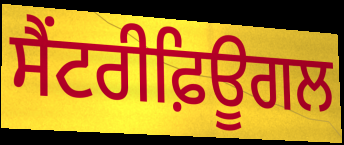
ਸੈਂਟਰੀਫ਼ਿਊਗਲ